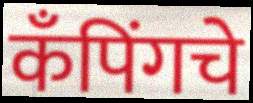
कँपिंगचे